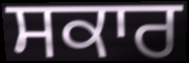
ਸਕਾਰ